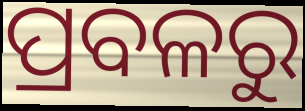
ପ୍ରବଳରୁ